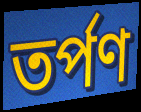
তৰ্পণ